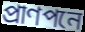
প্রাণপনে